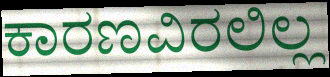
ಕಾರಣವಿರಲಿಲ್ಲ